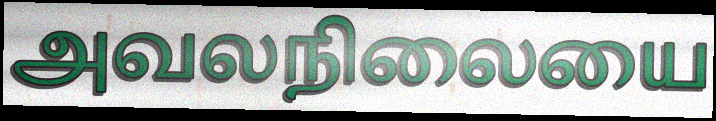
அவலநிலையை